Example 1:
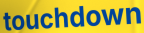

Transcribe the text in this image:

touchdown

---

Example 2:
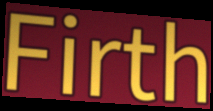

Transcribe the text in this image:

Firth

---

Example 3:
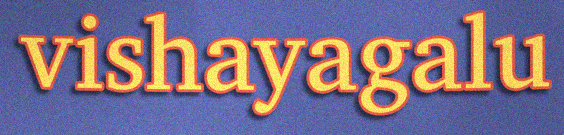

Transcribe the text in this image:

vishayagalu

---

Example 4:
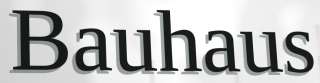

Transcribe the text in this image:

Bauhaus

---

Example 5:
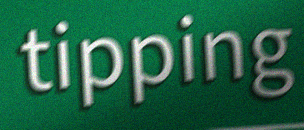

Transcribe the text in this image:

tipping